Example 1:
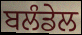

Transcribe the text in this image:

ਬਲੰਡੇਲ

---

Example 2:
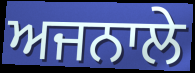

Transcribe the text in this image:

ਅਜਨਾਲੇ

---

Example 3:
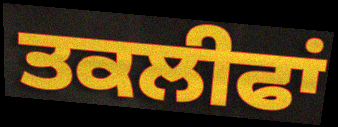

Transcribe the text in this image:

ਤਕਲੀਫਾਂ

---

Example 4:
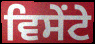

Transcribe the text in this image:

ਵਿਸੇਂਟੇ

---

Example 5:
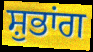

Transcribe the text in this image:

ਸ਼ੁਭਾਂਗ